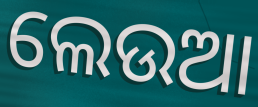
ଲେଉଆ